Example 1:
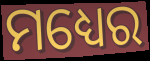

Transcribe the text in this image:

ମଧ୍ୟେର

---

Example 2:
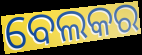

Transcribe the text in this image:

ବେଲକର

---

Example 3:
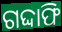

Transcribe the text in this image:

ଗଦ୍ଦାଫି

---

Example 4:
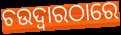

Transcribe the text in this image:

ଚଉଦ୍ଵାରଠାରେ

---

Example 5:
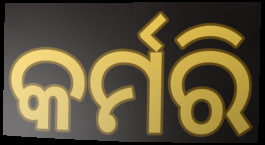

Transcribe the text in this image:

କର୍ମରି